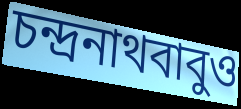
চন্দ্রনাথবাবুও